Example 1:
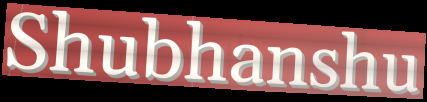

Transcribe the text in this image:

Shubhanshu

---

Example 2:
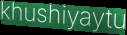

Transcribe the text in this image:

khushiyaytu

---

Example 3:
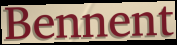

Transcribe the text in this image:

Bennent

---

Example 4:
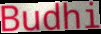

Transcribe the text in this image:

Budhi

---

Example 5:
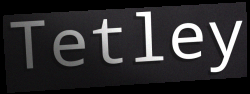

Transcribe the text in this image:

Tetley